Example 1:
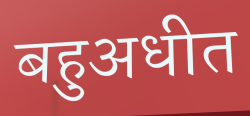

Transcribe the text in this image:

बहुअधीत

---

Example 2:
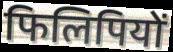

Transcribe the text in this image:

फिलिपियों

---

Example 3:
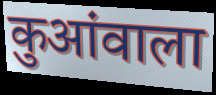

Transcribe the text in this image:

कुआंवाला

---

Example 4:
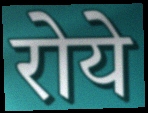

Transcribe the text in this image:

रोये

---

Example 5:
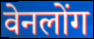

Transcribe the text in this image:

वेनलोंग